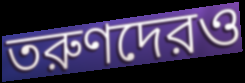
তরুণদেরও